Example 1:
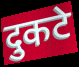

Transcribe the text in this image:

दुकटे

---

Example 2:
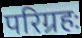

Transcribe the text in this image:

परिग्रहः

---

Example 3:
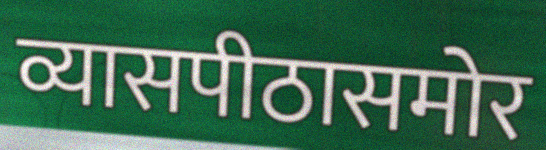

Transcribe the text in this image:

व्यासपीठासमोर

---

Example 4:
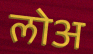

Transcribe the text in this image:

लोअ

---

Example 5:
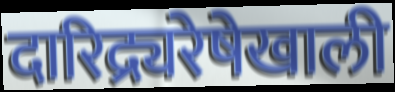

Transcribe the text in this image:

दारिद्र्यरेषेखाली